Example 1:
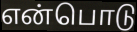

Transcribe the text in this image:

என்பொடு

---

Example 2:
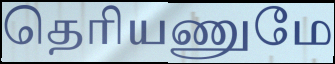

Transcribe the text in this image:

தெரியணுமே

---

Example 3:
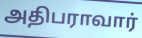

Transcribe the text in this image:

அதிபராவார்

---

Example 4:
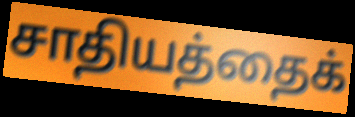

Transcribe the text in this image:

சாதியத்தைக்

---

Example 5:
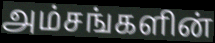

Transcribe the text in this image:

அம்சங்களின்